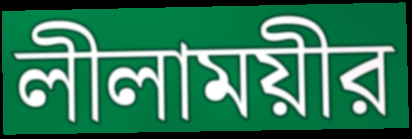
লীলাময়ীর